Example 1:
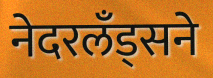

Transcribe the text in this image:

नेदरलँड्सने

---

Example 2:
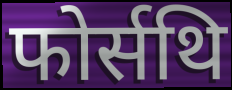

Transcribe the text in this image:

फोर्सथि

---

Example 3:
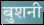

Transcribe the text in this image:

बुशनी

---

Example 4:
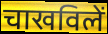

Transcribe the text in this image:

चाखविलें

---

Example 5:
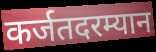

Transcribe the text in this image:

कर्जतदरम्यान